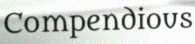
Compendious